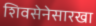
शिवसेनेसारखा